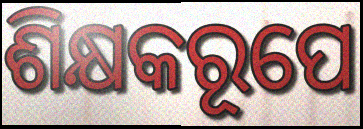
ଶିକ୍ଷକରୂପେ